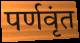
पर्णवृंत